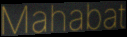
Mahabat